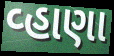
વ્હાણા